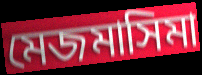
মেজমাসিমা